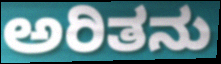
ಅರಿತನು